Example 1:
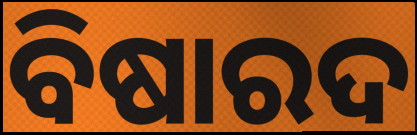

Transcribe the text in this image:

ବିଷାରଦ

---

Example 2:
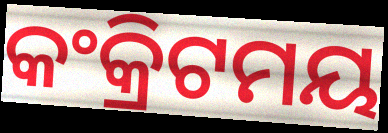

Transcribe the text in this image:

କଂକ୍ରିଟମୟ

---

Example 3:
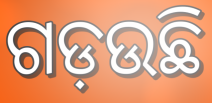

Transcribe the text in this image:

ଗଡ଼ଉଛି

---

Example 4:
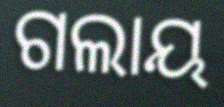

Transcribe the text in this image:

ଗଲାୟ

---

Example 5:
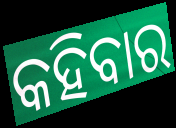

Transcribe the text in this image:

କହିବାର